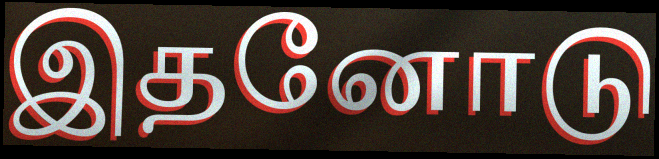
இதனோடு